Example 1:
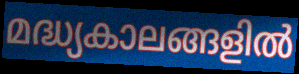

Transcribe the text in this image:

മദ്ധ്യകാലങ്ങളിൽ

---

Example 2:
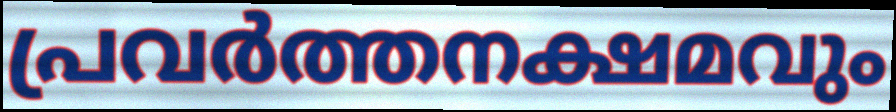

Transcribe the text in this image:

പ്രവർത്തനക്ഷമവും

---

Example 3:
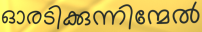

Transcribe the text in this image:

ഓരടിക്കുന്നിന്മേൽ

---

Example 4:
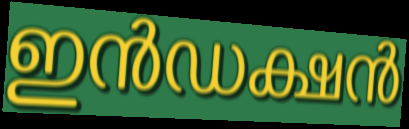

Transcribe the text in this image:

ഇൻഡക്ഷൻ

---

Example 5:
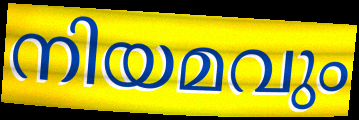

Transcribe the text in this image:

നിയമവും